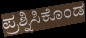
ಪ್ರಶ್ನಿಸಿಕೊಂಡ